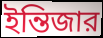
ইন্তিজার